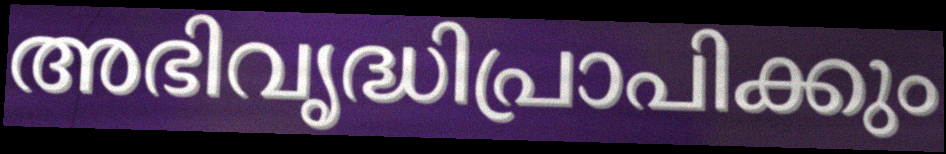
അഭിവൃദ്ധിപ്രാപിക്കും